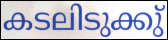
കടലിടുക്കു്